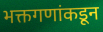
भक्तगणांकडून